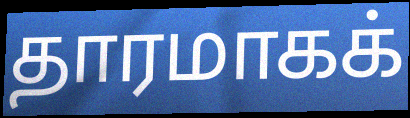
தாரமாகக்